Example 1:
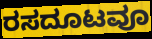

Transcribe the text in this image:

ರಸದೂಟವೂ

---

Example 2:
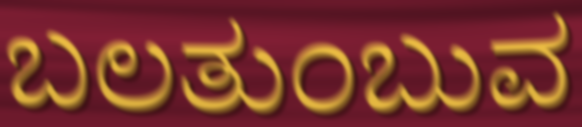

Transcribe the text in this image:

ಬಲತುಂಬುವ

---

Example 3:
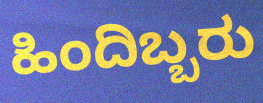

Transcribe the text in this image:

ಹಿಂದಿಬ್ಬರು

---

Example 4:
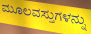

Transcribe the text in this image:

ಮೂಲವಸ್ತುಗಳನ್ನು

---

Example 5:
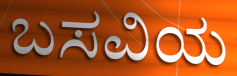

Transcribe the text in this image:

ಬಸವಿಯ